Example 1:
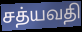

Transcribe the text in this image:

சத்யவதி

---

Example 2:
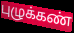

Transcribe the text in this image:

புழுக்கண்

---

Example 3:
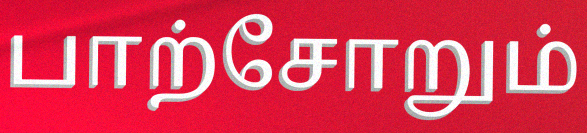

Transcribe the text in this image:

பாற்சோறும்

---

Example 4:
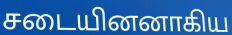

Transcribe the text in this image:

சடையினனாகிய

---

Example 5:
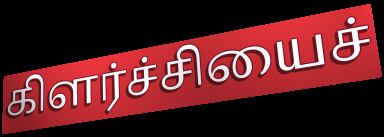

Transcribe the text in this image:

கிளர்ச்சியைச்